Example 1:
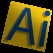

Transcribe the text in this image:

Ai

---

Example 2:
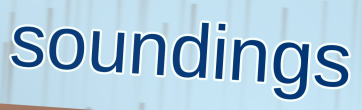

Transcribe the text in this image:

soundings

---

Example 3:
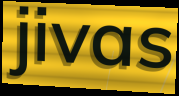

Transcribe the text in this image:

jivas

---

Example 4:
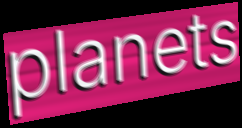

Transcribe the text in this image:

planets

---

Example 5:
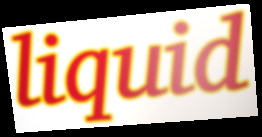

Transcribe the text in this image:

liquid